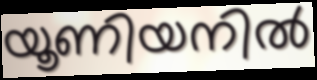
യൂണിയനിൽ